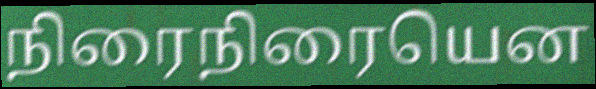
நிரைநிரையென